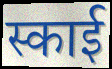
स्काई